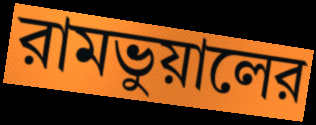
রামভুয়ালের